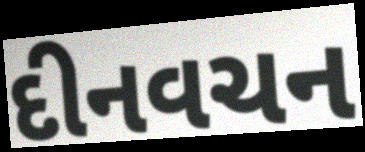
દીનવચન